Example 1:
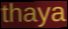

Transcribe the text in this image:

thaya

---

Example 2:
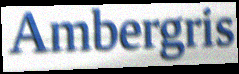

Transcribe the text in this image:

Ambergris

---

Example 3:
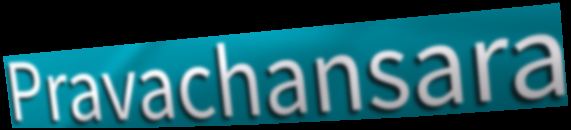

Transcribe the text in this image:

Pravachansara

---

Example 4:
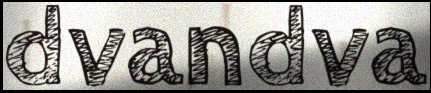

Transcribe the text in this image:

dvandva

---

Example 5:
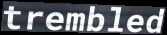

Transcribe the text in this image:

trembled